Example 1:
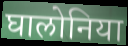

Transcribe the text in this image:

घालोनिया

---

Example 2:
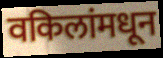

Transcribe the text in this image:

वकिलांमधून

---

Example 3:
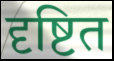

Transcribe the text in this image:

दृष्टित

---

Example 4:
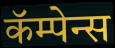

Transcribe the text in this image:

कॅम्पेन्स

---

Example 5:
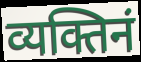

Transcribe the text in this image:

व्यक्तिनं